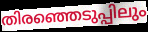
തിരഞ്ഞെടുപ്പിലും